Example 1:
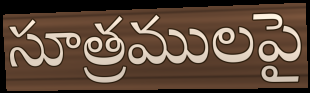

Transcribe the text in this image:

సూత్రములపై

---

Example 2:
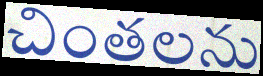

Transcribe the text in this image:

చింతలను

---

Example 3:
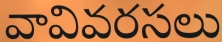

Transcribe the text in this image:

వావివరసలు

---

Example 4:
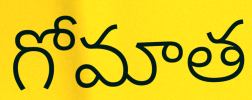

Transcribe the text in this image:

గోమాత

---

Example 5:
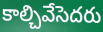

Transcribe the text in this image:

కాల్చివేసెదరు